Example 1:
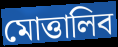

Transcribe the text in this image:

মোত্তালিব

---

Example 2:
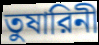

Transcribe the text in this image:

তুষারিনী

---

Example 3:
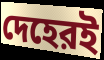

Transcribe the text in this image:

দেহেরই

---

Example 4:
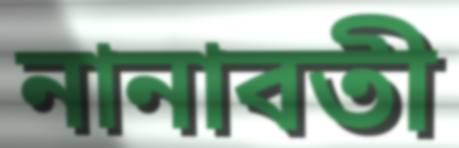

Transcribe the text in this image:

নানাবতী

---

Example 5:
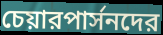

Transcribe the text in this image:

চেয়ারপার্সনদের